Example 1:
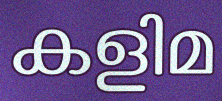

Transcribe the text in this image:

കളിമ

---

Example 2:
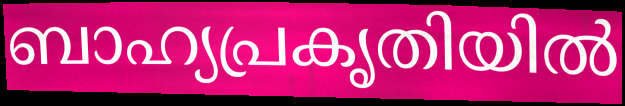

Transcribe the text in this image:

ബാഹ്യപ്രകൃതിയിൽ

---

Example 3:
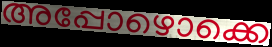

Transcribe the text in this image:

അപ്പോഴൊക്കെ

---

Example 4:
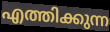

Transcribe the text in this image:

എത്തിക്കുന്ന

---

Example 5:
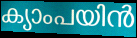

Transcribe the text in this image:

ക്യാംപയിൻ